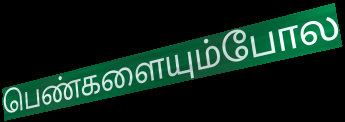
பெண்களையும்போல